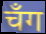
चँग